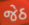
જેઠ